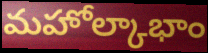
మహోల్కాభాం